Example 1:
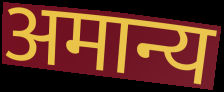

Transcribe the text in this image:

अमान्य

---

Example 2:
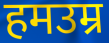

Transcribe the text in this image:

हमउम्र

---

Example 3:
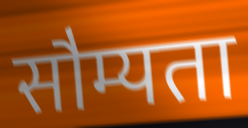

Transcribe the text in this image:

सौम्यता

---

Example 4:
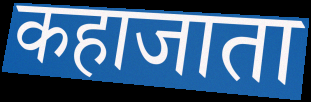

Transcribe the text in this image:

कहाजाता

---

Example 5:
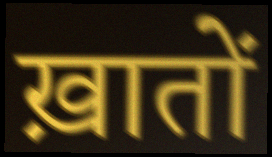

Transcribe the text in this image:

ख़ातों